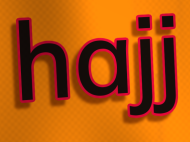
hajj